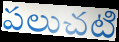
పలుచటి